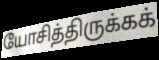
யோசித்திருக்கக்